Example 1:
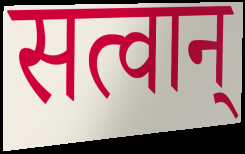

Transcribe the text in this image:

सत्वान्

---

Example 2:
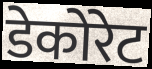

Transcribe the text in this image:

डेकोरेट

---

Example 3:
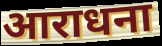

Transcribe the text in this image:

आराधना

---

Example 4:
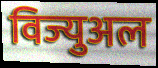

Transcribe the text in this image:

विज्युअल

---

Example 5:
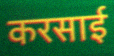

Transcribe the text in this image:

करसाई